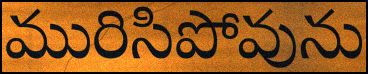
మురిసిపోవును